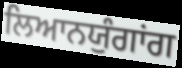
ਲਿਆਨਯੁੰਗਾਂਗ